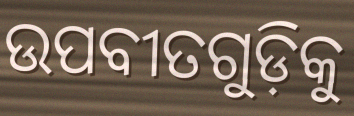
ଉପବୀତଗୁଡ଼ିକୁ